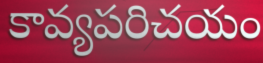
కావ్యపరిచయం